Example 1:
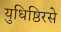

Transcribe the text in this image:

युधिष्ठिरसे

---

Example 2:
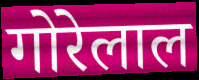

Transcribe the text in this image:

गोरेलाल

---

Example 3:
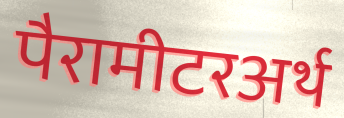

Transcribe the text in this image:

पैरामीटरअर्थ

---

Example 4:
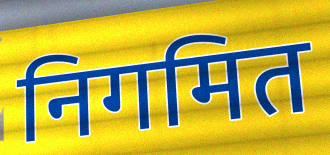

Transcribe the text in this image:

निगमित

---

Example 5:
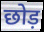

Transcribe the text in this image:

छोड़